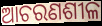
ଆଚରଣଶୀଳ